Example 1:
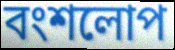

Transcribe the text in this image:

বংশলোপ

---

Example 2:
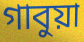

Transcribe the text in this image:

গাবুয়া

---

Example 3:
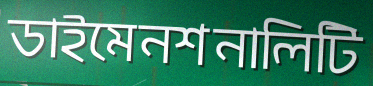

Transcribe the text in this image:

ডাইমেনশনালিটি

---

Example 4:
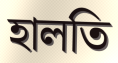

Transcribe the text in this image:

হালতি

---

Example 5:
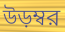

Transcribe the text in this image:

উড়ম্বর